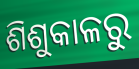
ଶିଶୁକାଳରୁ